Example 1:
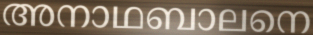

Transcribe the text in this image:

അനാഥബാലനെ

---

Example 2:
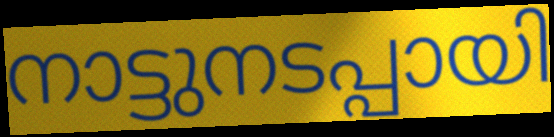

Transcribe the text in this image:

നാട്ടുനടപ്പായി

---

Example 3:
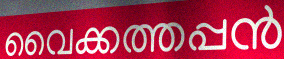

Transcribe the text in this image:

വൈക്കത്തപ്പൻ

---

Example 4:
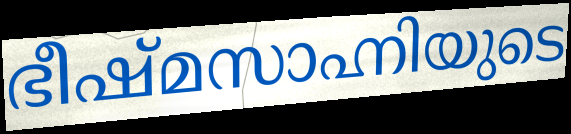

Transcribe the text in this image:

ഭീഷ്മസാഹ്നിയുടെ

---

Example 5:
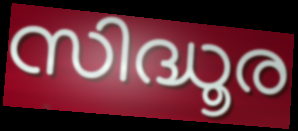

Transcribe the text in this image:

സിദ്ധൂര